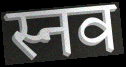
स्नव